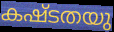
കഷ്ടതയു